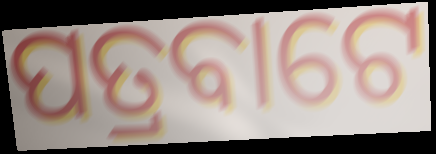
ପତ୍ରବାଟେ